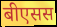
बीएसस